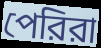
পেরিরা